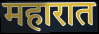
महारात